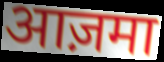
आज़मा